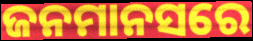
ଜନମାନସରେ